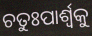
ଚତୁଃପାର୍ଶ୍ୱକୁ